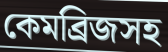
কেমব্রিজসহ